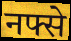
नफ्से